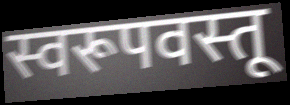
स्वरूपवस्तू